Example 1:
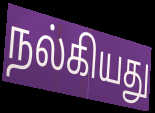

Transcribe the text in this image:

நல்கியது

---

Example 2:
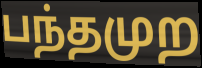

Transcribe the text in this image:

பந்தமுற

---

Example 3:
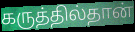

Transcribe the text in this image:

கருத்தில்தான்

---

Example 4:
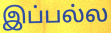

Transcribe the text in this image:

இப்பல்ல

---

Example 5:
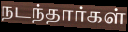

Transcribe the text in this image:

நடந்தார்கள்